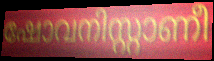
ഷോവനിസ്റ്റാണീ